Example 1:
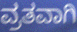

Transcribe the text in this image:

ವ್ರತವಾಗಿ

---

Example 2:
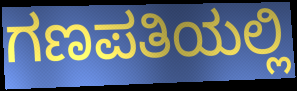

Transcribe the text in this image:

ಗಣಪತಿಯಲ್ಲಿ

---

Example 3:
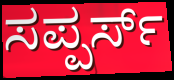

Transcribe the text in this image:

ಸಪ್ಪರ್ಸ್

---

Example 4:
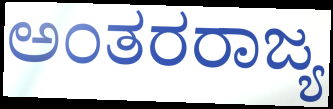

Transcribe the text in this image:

ಅಂತರರಾಜ್ಯ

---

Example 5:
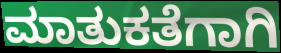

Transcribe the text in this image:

ಮಾತುಕತೆಗಾಗಿ